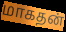
மாகதன்